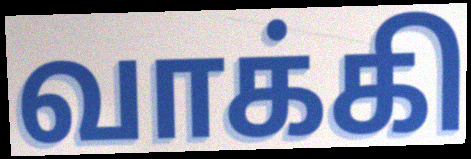
வாக்கி